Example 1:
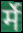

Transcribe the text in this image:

र्मे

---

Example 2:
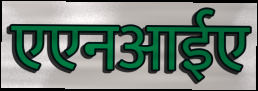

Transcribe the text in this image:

एएनआईए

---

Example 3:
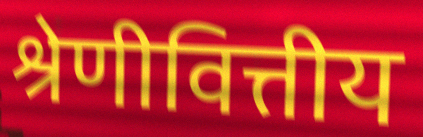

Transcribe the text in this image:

श्रेणीवित्तीय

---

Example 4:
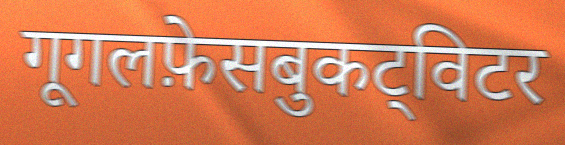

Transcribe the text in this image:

गूगलफ़ेसबुकट्विटर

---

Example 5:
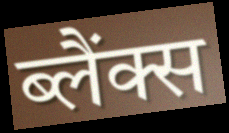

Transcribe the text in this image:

ब्लैंक्स